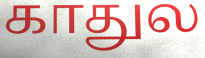
காதுல